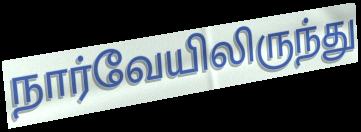
நார்வேயிலிருந்து